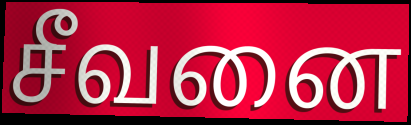
சீவனை